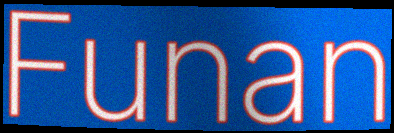
Funan